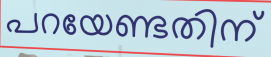
പറയേണ്ടതിന്